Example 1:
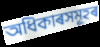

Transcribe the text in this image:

অধিকাৰসমূহৰ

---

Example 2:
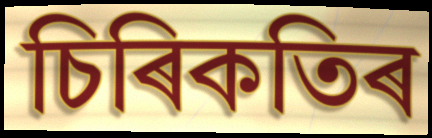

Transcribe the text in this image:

চিৰিকতিৰ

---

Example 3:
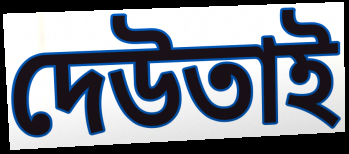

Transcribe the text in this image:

দেউতাই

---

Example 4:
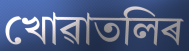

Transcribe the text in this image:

খোৱাতলিৰ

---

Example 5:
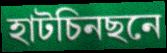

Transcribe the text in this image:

হাটচিনছনে